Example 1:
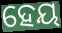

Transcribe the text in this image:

ହେୟ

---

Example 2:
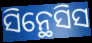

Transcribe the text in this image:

ସିନ୍ଥେସିସ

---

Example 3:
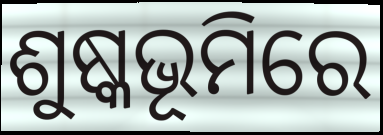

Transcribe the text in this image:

ଶୁଷ୍କଭୂମିରେ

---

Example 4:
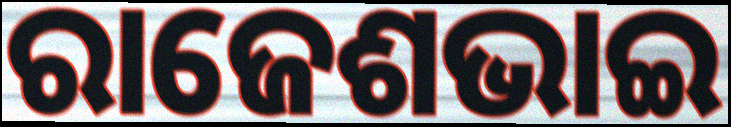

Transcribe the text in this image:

ରାଜେଶଭାଇ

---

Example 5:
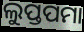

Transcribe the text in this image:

ଲୁପ୍ତପମା